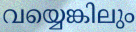
വയ്യെങ്കിലും